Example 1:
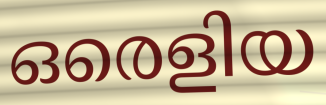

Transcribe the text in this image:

ഒരെളിയ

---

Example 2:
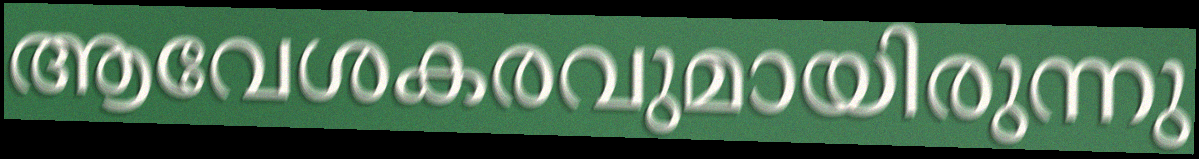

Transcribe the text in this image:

ആവേശകരവുമായിരുന്നു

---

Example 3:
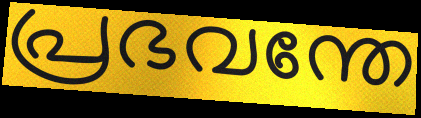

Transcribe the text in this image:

പ്രഭവന്തേ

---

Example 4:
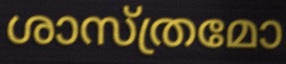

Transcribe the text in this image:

ശാസ്ത്രമോ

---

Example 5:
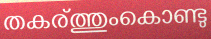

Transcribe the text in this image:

തകര്ത്തുംകൊണ്ടു